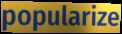
popularize